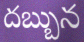
దబ్బున